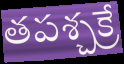
తపశ్చక్రే